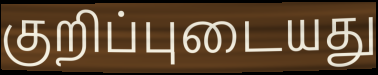
குறிப்புடையது